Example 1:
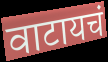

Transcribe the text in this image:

वाटायचं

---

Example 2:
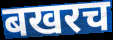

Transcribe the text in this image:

बखरच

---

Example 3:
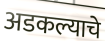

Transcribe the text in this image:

अडकल्याचे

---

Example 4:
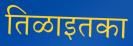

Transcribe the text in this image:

तिळाइतका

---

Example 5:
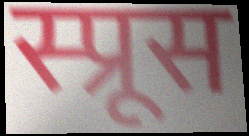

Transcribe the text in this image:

स्प्रूस